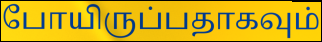
போயிருப்பதாகவும்